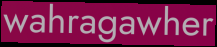
wahragawher